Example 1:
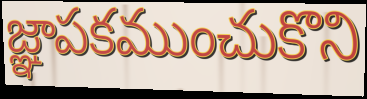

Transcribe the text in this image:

జ్ఞాపకముంచుకొని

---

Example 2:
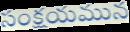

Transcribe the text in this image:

సంక్షయమున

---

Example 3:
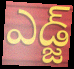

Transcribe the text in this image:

ఎడ్జ్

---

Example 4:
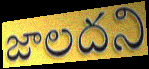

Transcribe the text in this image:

జాలదని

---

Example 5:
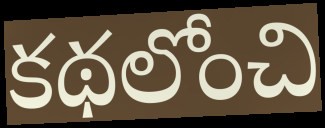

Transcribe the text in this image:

కథలోంచి